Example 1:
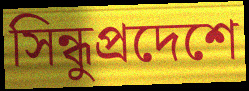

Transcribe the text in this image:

সিন্ধুপ্রদেশে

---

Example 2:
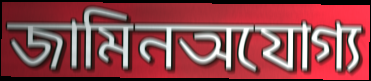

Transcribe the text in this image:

জামিনঅযোগ্য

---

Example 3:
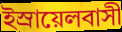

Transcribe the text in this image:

ইস্রায়েলবাসী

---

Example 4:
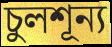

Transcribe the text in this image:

চুলশূন্য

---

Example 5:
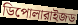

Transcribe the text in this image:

ডিপোলারাইজড